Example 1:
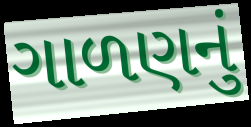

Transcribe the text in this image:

ગાળણનું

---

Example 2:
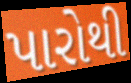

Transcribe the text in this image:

પારોથી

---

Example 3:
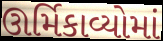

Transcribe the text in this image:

ઊર્મિકાવ્યોમાં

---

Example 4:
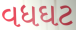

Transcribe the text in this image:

વધઘટ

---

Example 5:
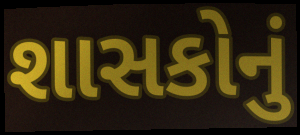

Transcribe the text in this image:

શાસકોનું